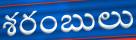
శరంబులు